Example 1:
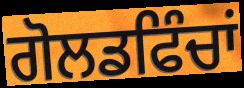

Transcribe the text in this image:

ਗੋਲਡਫਿੰਚਾਂ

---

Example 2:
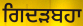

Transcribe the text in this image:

ਗਿਦੜਬਹਾ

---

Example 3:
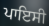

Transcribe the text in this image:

ਪਾਇਸੀ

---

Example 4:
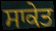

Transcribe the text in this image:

ਸਾਕੇਤ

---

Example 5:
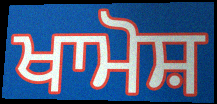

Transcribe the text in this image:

ਖਾਮੋਸ਼